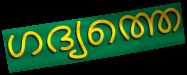
ഗദ്യത്തെ